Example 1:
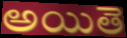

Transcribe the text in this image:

అయితె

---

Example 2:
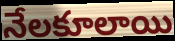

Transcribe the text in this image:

నేలకూలాయి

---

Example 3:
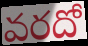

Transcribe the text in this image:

వరదో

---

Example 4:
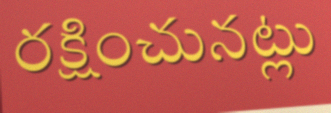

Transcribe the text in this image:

రక్షించునట్లు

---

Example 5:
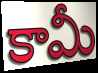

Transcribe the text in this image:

కామీ